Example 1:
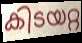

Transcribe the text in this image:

കിടയറ്റ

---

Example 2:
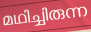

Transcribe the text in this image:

മഥിച്ചിരുന്ന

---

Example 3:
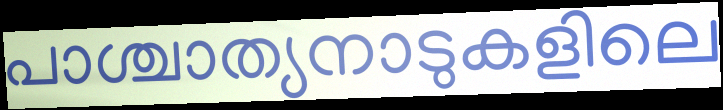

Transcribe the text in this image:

പാശ്ചാത്യനാടുകളിലെ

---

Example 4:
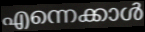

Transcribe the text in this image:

എന്നെക്കാൾ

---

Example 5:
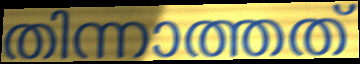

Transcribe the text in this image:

തിന്നാത്തത്